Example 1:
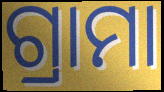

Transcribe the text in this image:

ଗ୍ରାମା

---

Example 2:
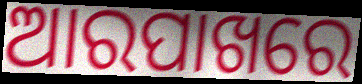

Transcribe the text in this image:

ଆରପାଖରେ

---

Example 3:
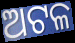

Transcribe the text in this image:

ଅଟଳ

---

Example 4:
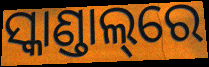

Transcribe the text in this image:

ସ୍କାଣ୍ଡାଲ୍‌ରେ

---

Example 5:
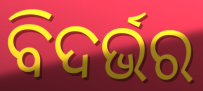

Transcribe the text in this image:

ବିଦର୍ଭର